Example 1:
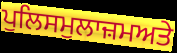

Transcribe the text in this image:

ਪੁਲਿਸਮੁਲਾਜ਼ਮਅਤੇ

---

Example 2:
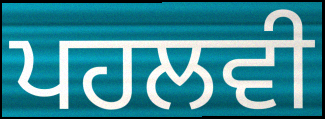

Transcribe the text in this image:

ਪਹਲਵੀ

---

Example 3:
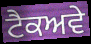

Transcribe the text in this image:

ਟੈਕਅਵੇ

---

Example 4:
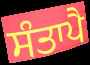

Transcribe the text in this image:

ਸੰਤਾਪੈ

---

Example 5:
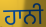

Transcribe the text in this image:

ਹਾਨੀ